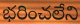
భరించలేని